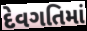
દેવગતિમાં